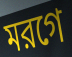
মরগে